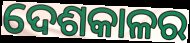
ଦେଶକାଳର